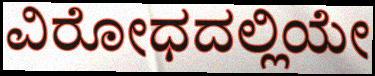
ವಿರೋಧದಲ್ಲಿಯೇ